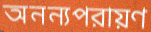
অনন্যপরায়ণ